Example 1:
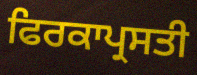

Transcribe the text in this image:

ਫਿਰਕਾਪ੍ਰਸਤੀ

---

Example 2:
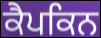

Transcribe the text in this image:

ਕੈਪਕਿਨ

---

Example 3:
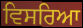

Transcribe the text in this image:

ਵਿਸਰਿਆ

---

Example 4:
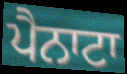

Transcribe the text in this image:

ਪੈਨਾਟਾ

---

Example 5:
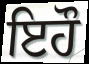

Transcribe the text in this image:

ਇਹੌ